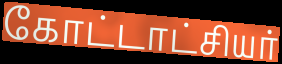
கோட்டாட்சியர்